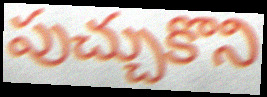
పుచ్చుకొని